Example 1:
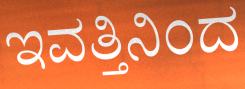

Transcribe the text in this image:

ಇವತ್ತಿನಿಂದ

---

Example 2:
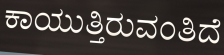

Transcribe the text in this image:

ಕಾಯುತ್ತಿರುವಂತಿದೆ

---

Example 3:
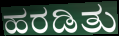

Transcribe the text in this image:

ಹರಡಿತು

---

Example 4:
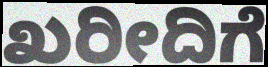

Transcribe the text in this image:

ಖರೀದಿಗೆ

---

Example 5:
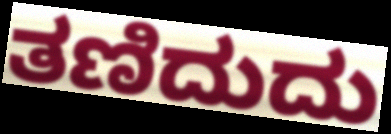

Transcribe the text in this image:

ತಣಿದುದು